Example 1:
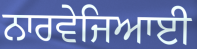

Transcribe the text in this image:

ਨਾਰਵੇਜਿਆਈ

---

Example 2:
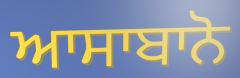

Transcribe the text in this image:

ਆਸਾਬਾਨੋ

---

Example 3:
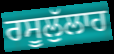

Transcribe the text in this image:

ਰਸੂਲੁੱਲਾਹ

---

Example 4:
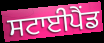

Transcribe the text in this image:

ਸਟਾਈਪੈਂਡ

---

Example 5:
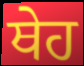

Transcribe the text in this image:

ਥੇਹ